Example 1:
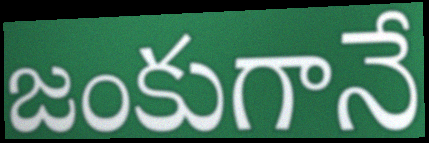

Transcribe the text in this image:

జంకుగానే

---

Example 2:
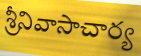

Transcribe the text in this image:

శ్రీనివాసాచార్య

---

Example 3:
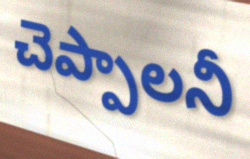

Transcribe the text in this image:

చెప్పాలనీ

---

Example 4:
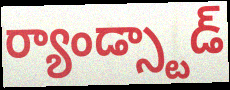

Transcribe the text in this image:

ర్యాండ్స్టాడ్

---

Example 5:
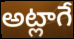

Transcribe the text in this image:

అట్లాగే